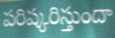
పరిష్కరిస్తుందా